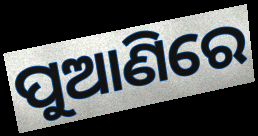
ପୁଆଣିରେ